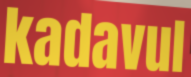
kadavul